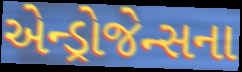
એન્ડ્રોજેન્સના